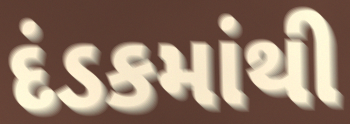
દંડકમાંથી